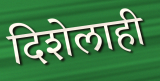
दिशेलाही